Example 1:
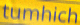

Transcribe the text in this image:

tumhich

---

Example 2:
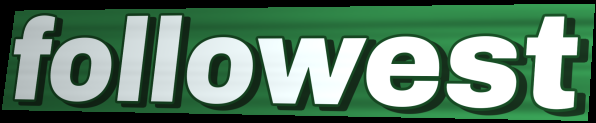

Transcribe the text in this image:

followest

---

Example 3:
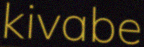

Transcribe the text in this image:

kivabe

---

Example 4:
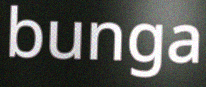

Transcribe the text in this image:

bunga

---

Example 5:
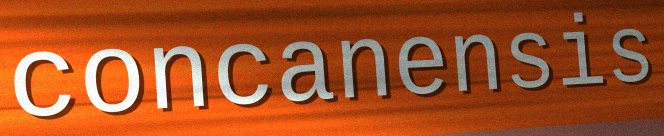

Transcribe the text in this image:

concanensis